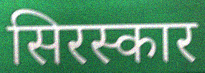
सिरस्कार